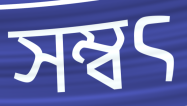
সম্বৎ